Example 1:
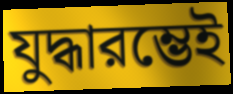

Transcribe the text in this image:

যুদ্ধারম্ভেই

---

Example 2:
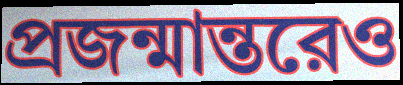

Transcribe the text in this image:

প্রজন্মান্তরেও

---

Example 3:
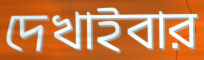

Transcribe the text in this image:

দেখাইবার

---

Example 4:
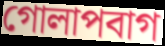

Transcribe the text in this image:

গোলাপবাগ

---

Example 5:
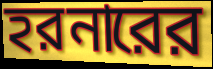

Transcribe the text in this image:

হরনারের